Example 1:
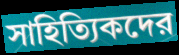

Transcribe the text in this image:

সাহিত্যিকদের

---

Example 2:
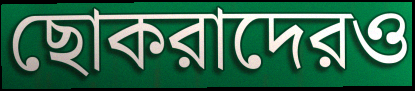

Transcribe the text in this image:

ছোকরাদেরও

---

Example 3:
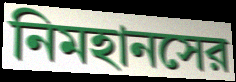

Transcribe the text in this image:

নিমহানসের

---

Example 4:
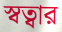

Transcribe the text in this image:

স্বত্বার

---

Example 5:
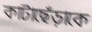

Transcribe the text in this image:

কাটাছেঁড়াকে